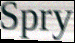
Spry